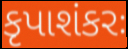
કૃપાશંકરઃ